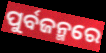
ପୁର୍ବଜନ୍ମରେ